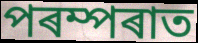
পৰম্পৰাত